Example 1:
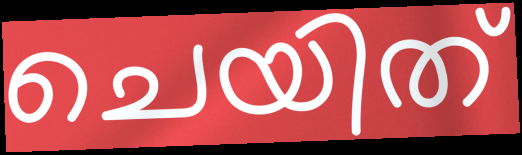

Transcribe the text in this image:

ചെയിത്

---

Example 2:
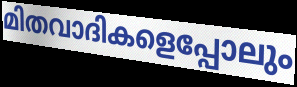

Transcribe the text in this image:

മിതവാദികളെപ്പോലും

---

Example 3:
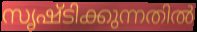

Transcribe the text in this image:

സൃഷ്ടിക്കുന്നതിൽ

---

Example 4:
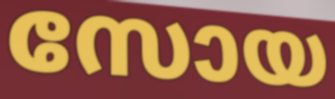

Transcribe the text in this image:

സോയ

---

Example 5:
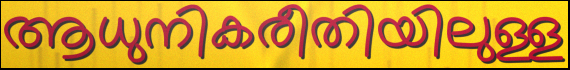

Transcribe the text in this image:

ആധുനികരീതിയിലുള്ള